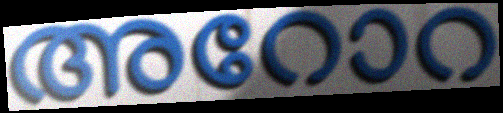
അറോറ